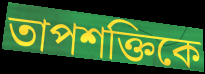
তাপশক্তিকে